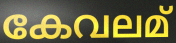
കേവലമ്